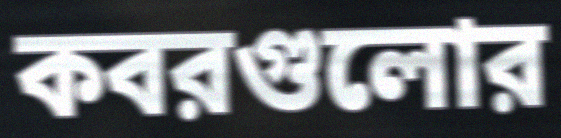
কবরগুলোর